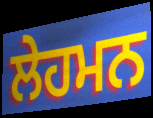
ਲੇਹਮਨ